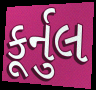
કૂર્નુલ